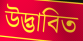
উদ্ভাবিত